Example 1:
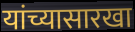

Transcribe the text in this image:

यांच्यासारखा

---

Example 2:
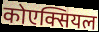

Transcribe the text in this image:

कोएक्सियल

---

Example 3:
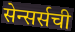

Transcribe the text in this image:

सेन्सर्सची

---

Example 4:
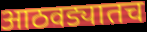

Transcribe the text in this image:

आठवड्यातच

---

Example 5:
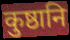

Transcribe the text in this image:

कुष्ठानि